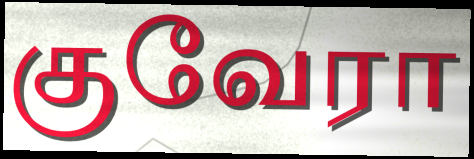
குவேரா